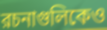
রচনাগুলিকেও